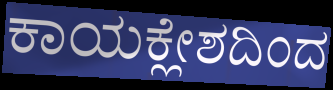
ಕಾಯಕ್ಲೇಶದಿಂದ